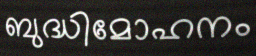
ബുദ്ധിമോഹനം